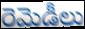
రెమెడీలు